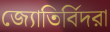
জ্যোতির্বিদরা